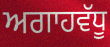
ਅਗਾਹਵੱਧੂ